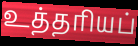
உத்தரியப்